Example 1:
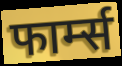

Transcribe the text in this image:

फार्म्स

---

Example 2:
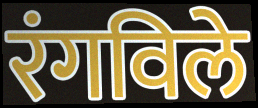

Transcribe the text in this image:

रंगविले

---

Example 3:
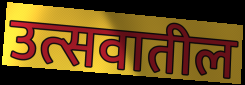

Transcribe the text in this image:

उत्सवातील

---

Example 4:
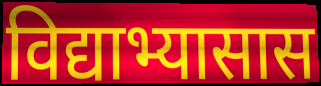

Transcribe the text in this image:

विद्याभ्यासास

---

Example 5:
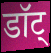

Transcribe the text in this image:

डॉट्